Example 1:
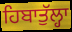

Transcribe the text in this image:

ਹਿਬਾਤੁੱਲ੍ਹਾ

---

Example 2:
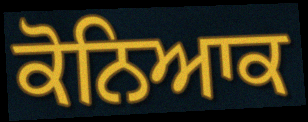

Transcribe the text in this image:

ਕੋਨਿਆਕ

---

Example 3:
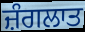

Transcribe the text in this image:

ਜ਼ੰਗਲਾਤ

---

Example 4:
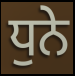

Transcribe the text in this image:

ਧੁਨੇ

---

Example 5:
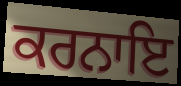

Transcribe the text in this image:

ਕਰਨਾਇ